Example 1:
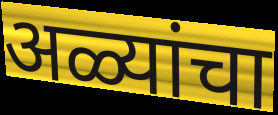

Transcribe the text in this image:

अळ्यांचा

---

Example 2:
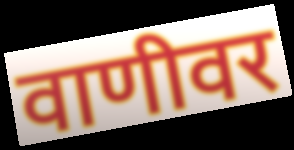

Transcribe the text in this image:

वाणीवर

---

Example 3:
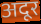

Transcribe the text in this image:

अदूर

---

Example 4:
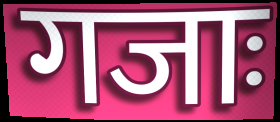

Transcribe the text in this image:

गजाः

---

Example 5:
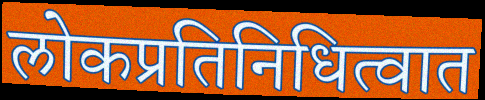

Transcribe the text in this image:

लोकप्रतिनिधित्वात